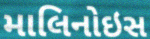
માલિનોઇસ